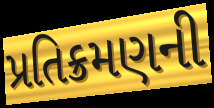
પ્રતિક્રમણની